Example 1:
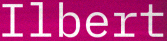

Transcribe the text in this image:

Ilbert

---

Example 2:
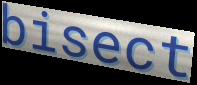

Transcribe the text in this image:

bisect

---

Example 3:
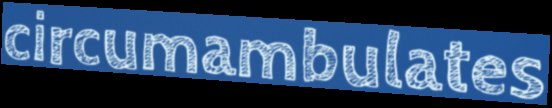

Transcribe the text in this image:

circumambulates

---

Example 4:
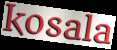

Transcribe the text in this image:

kosala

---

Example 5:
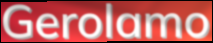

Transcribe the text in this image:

Gerolamo